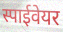
स्पाईवेयर